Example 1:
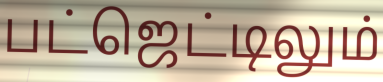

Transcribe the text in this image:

பட்ஜெட்டிலும்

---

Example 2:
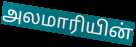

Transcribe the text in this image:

அலமாரியின்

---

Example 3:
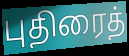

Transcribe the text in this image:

புதிரைத்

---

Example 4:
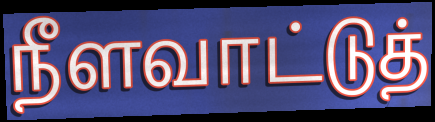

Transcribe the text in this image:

நீளவாட்டுத்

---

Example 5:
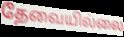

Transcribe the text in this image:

தேவையில்லை